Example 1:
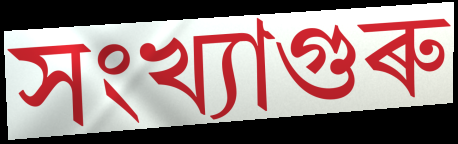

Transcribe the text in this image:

সংখ্যাগুৰু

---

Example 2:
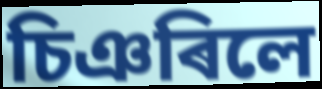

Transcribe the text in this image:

চিঞৰিলে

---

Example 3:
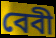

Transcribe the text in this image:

বেবী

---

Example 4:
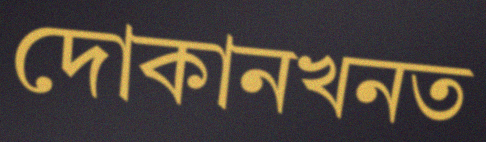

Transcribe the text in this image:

দোকানখনত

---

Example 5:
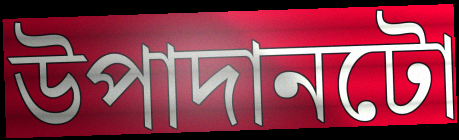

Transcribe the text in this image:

উপাদানটো